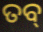
ତବ୍